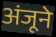
अंजूने